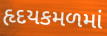
હૃદયકમળમાં